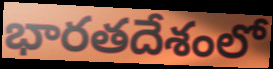
భారతదేశంలో